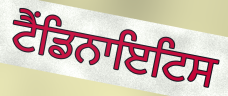
ਟੈਂਡਿਨਾਇਟਿਸ